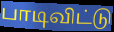
பாடிவிட்டு